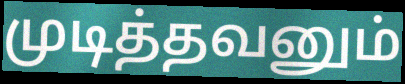
முடித்தவனும்